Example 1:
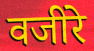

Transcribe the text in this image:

वजीरे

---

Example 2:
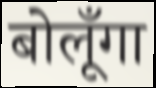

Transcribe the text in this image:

बोलूँगा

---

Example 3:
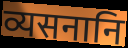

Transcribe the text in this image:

व्यसनानि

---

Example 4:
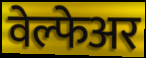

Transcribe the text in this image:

वेल्फेअर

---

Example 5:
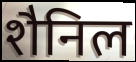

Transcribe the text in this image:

शैनिल